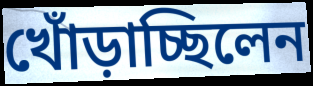
খোঁড়াচ্ছিলেন